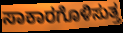
ಸಾಕಾರಗೊಳಿಸುತ್ತ